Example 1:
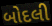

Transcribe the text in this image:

બોદલી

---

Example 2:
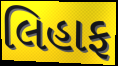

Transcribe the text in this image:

લિહાફ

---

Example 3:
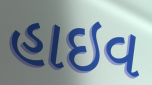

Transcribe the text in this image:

હાઇવ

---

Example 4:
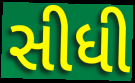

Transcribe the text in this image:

સીધી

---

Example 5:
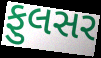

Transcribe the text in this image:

ફુલસર